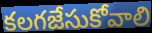
కలగజేసుకోవాలి